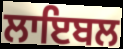
ਲਾਇਬਲ